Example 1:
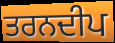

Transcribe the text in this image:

ਤਰਨਦੀਪ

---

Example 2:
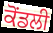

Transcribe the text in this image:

ਕੋਂਡਲੀ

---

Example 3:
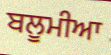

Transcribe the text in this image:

ਬਲੂਮੀਆ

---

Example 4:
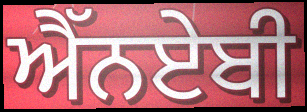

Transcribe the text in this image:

ਐੱਨਏਬੀ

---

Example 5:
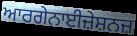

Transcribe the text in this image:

ਆਰਗੇਨਾਈਜ਼ੇਸ਼ਨਜ਼